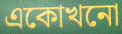
একোখনো